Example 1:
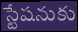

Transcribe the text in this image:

స్టేషనుకు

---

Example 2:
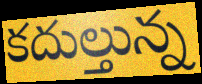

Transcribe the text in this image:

కదుల్తున్న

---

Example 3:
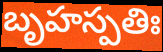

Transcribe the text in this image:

బృహస్పతిః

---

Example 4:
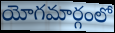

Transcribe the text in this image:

యోగమార్గంలో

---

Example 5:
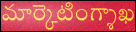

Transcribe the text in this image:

మార్కెటింగ్శాఖ